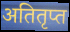
अतितृप्त